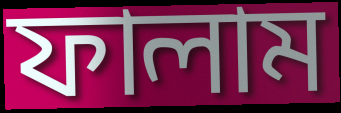
ফালাম